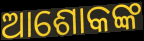
ଆଶୋକଙ୍କ